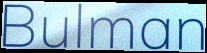
Bulman